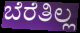
ಬೆರೆತಿಲ್ಲ